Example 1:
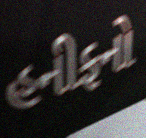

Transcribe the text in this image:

હનીફનો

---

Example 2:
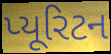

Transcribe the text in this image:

પ્યૂરિટન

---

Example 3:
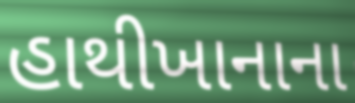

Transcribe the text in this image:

હાથીખાનાના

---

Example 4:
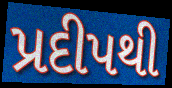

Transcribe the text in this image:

પ્રદીપથી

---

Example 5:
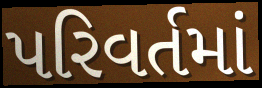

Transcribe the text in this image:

પરિવર્તમાં